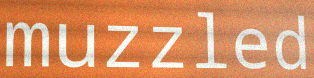
muzzled